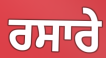
ਰਸਾਰੇ